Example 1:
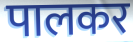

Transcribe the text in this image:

पालकर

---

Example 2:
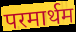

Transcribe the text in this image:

परमार्थम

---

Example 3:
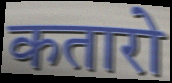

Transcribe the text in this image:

कतारो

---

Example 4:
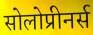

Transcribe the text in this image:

सोलोप्रीनर्स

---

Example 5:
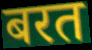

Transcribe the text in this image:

बरत